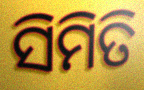
ସିମିତି